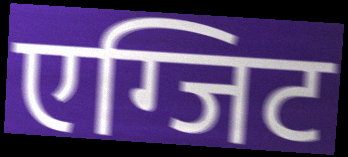
एग्जिट